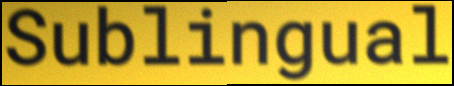
Sublingual